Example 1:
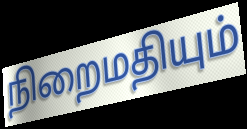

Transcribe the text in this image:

நிறைமதியும்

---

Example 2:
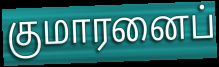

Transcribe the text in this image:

குமாரனைப்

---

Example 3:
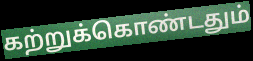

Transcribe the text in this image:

கற்றுக்கொண்டதும்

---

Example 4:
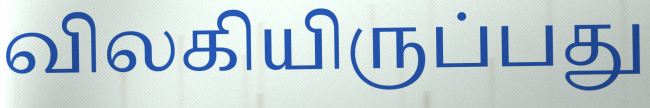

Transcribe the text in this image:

விலகியிருப்பது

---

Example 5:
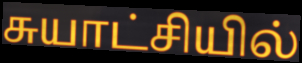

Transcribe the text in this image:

சுயாட்சியில்